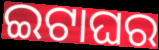
ଇଟାଘର